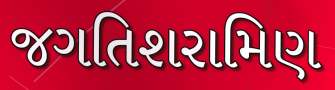
જગતિશરામિણ